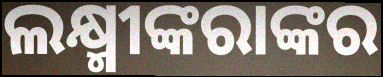
ଲକ୍ଷ୍ମୀଙ୍କରାଙ୍କର